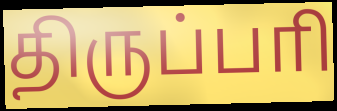
திருப்பரி